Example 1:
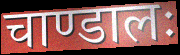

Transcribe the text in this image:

चाण्डालः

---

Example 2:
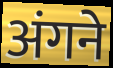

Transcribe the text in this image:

अंगने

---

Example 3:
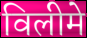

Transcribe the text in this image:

विलीमे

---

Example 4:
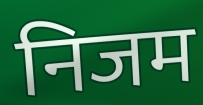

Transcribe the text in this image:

निजम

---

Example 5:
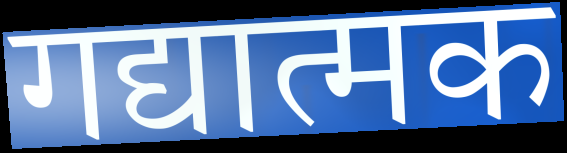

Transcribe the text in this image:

गद्यात्मक